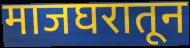
माजघरातून